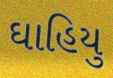
ઘાહિયુ